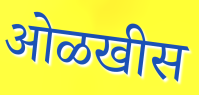
ओळखीस